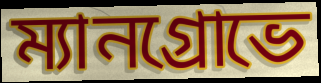
ম্যানগ্রোভে